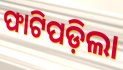
ଫାଟିପଡ଼ିଲା